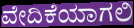
ವೇದಿಕೆಯಾಗಲಿ